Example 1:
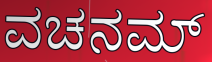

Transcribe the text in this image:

ವಚನಮ್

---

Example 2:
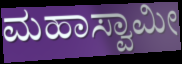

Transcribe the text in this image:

ಮಹಾಸ್ವಾಮೀ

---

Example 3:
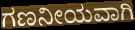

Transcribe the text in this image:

ಗಣನೀಯವಾಗಿ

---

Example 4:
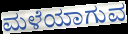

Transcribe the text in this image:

ಮಳೆಯಾಗುವ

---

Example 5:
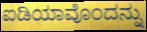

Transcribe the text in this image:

ಐಡಿಯಾವೊಂದನ್ನು